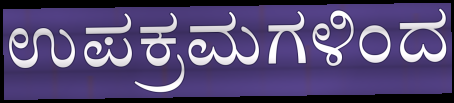
ಉಪಕ್ರಮಗಳಿಂದ